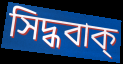
সিদ্ধবাক্